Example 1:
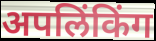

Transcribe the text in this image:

अपलिंकिंग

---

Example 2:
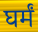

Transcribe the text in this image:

घर्मं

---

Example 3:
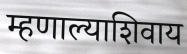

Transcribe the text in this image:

म्हणाल्याशिवाय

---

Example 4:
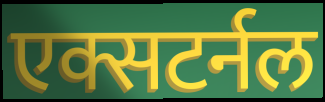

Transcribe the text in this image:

एक्सटर्नल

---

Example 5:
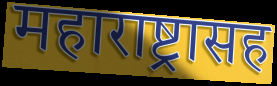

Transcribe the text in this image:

महाराष्ट्रासह